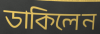
ডাকিলেন